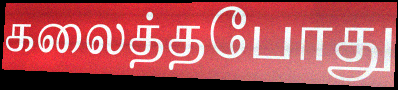
கலைத்தபோது